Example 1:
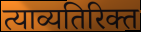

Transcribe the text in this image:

त्याव्यतिरिक्त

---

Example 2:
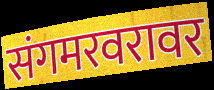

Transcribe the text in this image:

संगमरवरावर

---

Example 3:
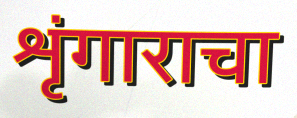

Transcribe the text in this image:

शृंगाराचा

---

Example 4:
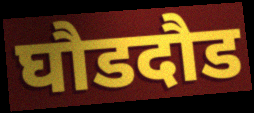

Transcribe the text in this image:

घौडदौड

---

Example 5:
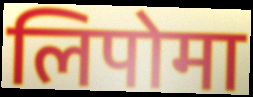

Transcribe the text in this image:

लिपोमा